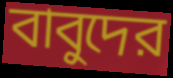
বাবুদের